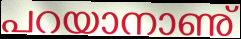
പറയാനാണു്